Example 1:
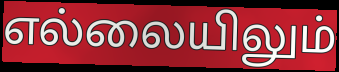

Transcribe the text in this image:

எல்லையிலும்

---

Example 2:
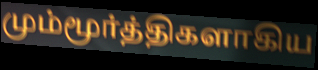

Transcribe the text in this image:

மும்மூர்த்திகளாகிய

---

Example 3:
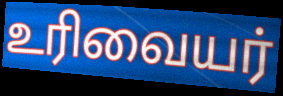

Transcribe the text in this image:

உரிவையர்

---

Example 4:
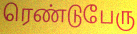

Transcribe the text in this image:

ரெண்டுபேரு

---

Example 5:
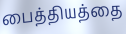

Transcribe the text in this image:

பைத்தியத்தை